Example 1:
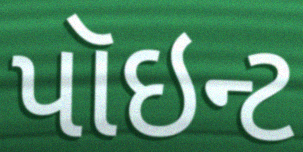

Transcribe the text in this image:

પૉઇન્ટ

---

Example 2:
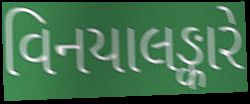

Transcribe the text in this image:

વિનયાલઙ્કારે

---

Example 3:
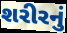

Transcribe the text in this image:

શરીરનું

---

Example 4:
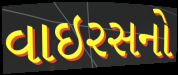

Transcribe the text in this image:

વાઇરસનો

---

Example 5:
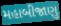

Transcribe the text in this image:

મહાબીજાણુ